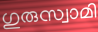
ഗുരുസ്വാമി